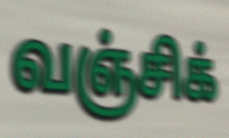
வஞ்சிக்